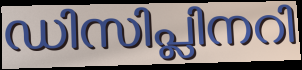
ഡിസിപ്ലിനറി